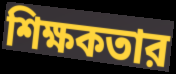
শিক্ষকতার